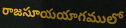
రాజసూయయాగములో